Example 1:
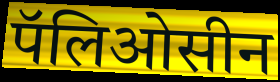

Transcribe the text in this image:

पॅलिओसीन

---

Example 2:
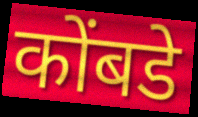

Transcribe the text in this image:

कोंबडे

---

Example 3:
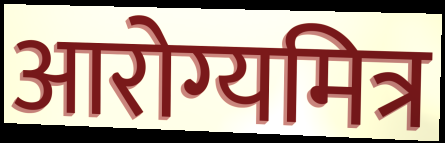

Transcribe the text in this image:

आरोग्यमित्र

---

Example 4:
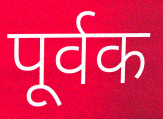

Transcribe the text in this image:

पूर्वक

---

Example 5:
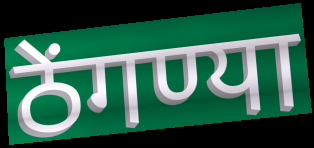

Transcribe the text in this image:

ठेंगण्या